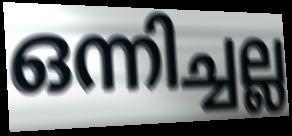
ഒന്നിച്ചല്ല